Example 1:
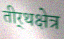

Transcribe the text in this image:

तीर्थक्षेत्र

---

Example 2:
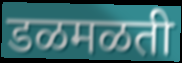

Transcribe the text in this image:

डळमळती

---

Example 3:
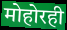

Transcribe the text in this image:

मोहोरही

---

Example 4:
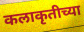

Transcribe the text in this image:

कलाकृतीच्या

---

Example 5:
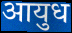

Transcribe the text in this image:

आयुध